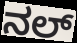
ನಲ್